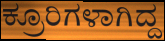
ಕ್ರೂರಿಗಳಾಗಿದ್ದ